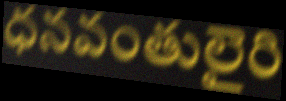
ధనవంతులైరి